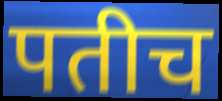
पतीच